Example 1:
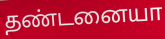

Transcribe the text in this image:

தண்டனையா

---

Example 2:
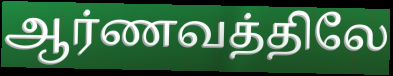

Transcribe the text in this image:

ஆர்ணவத்திலே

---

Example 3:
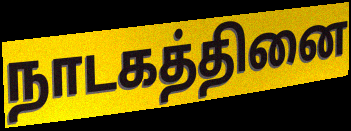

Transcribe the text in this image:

நாடகத்தினை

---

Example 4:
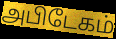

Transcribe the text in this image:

அபிடேகம்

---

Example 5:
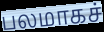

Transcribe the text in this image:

பலமாகச்